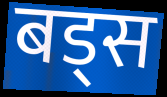
बड्स